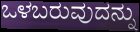
ಒಳಬರುವುದನ್ನು